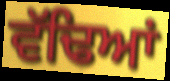
ਵੱਢਿਆਂ